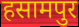
हसामपुर